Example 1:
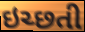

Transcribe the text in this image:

ઇચ્છતી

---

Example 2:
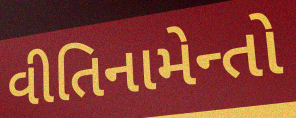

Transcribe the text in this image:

વીતિનામેન્તો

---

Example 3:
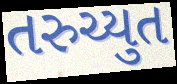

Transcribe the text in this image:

તરુચ્યુત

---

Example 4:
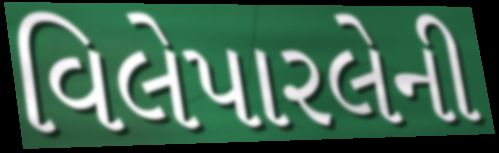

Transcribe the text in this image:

વિલેપારલેની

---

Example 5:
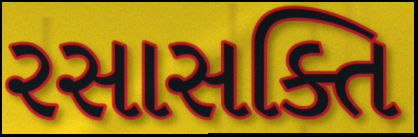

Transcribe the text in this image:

રસાસક્તિ